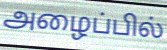
அழைப்பில்